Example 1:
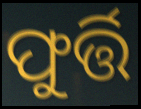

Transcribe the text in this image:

ଫୁର୍ତ୍ତି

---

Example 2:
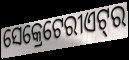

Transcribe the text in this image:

ସେକ୍ରେଟେରୀଏଟ୍‍ର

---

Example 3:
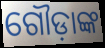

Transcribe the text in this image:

ଗୌଡ଼ାଙ୍କ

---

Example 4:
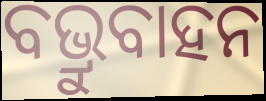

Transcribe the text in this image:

ବଭ୍ରୁବାହନ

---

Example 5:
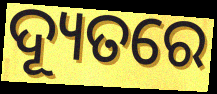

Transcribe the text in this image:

ଦ୍ୟୂତରେ